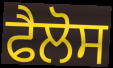
ਫੈਲੋਸ